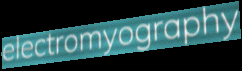
electromyography